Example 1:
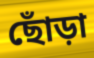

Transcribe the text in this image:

ছোঁড়া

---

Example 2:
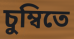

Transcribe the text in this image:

চুম্বিতে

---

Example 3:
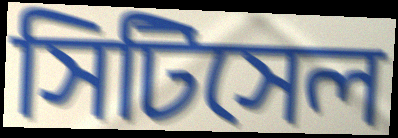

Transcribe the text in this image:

সিটিসেল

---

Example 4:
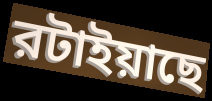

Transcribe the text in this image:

রটাইয়াছে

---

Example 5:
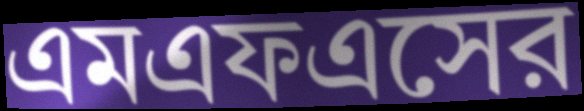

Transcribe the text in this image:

এমএফএসের